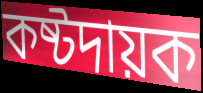
কষ্টদায়ক